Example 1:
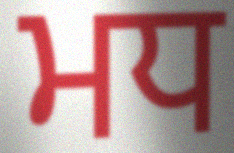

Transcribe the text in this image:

ਮਧ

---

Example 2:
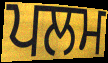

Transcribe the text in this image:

ਪਲਮ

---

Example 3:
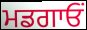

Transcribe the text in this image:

ਮਡਗਾਓਂ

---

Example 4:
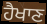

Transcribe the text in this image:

ਹੈਖਾਣ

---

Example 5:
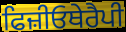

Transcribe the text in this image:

ਫਿਜ਼ੀਓਥੇਰੈਪੀ